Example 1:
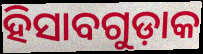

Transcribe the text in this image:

ହିସାବଗୁଡ଼ାକ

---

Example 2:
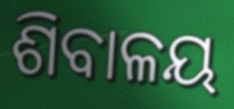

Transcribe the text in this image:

ଶିବାଳୟ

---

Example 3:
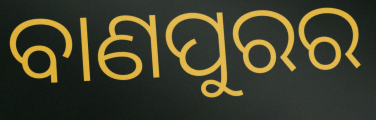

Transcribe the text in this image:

ବାଣପୁରର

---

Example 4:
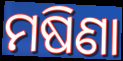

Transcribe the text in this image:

ମଷିଣା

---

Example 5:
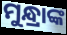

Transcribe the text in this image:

ମୁନ୍ଧ୍ରାଙ୍କ